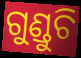
ଗୁଣ୍ଡୁଚି